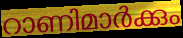
റാണിമാർക്കും